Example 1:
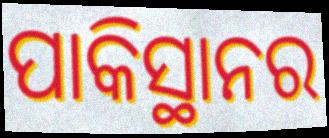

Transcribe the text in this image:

ପାକିସ୍ଥାନର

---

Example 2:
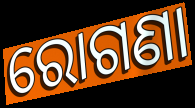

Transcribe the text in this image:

ରୋଗଣା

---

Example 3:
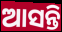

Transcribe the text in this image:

ଆସନ୍ତି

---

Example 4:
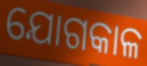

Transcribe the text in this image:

ଯୋଗକାଳ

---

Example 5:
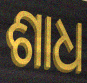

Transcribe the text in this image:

ଶାଧ